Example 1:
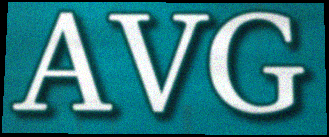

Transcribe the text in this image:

AVG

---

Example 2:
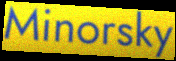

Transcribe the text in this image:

Minorsky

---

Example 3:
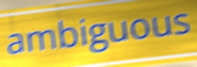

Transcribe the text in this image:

ambiguous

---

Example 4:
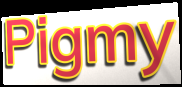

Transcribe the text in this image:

Pigmy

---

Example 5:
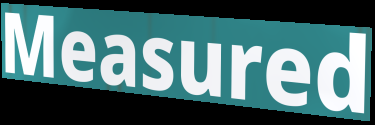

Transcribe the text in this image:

Measured